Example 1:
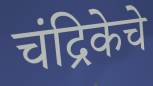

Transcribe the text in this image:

चंद्रिकेचे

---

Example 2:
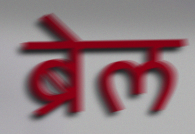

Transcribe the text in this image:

ब्रेल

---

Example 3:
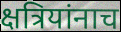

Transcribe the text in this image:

क्षत्रियांनाच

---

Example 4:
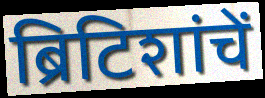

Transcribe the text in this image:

ब्रिटिशांचें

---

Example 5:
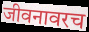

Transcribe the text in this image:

जीवनावरच